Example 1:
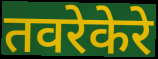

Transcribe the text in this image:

तवरेकेरे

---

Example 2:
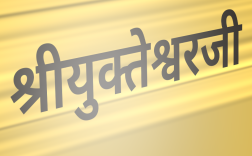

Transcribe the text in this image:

श्रीयुक्तेश्वरजी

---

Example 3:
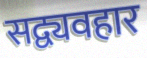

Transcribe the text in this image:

सद्व्यवहार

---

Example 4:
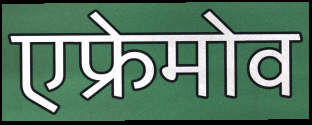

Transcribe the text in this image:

एफ्रेमोव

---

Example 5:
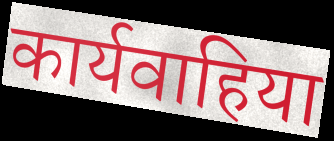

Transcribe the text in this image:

कार्यवाहिया